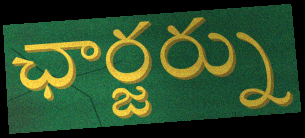
ఛార్జర్ను